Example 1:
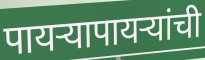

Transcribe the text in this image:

पायऱ्यापायऱ्यांची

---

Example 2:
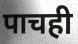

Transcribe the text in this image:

पाचही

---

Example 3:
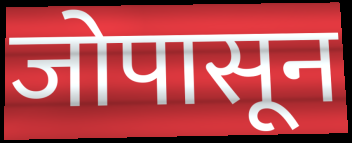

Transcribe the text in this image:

जोपासून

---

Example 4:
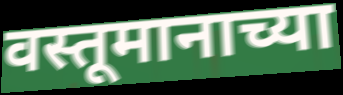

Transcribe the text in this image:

वस्तूमानाच्या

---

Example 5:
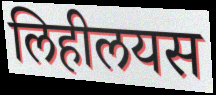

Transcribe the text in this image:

लिहीलयस